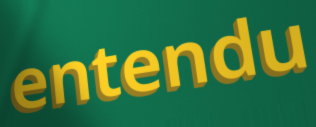
entendu